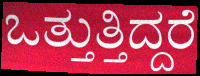
ಒತ್ತುತ್ತಿದ್ದರೆ